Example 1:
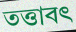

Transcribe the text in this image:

তত্তাবৎ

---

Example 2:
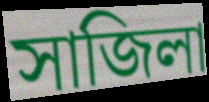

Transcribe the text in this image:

সাজিলা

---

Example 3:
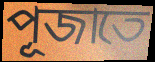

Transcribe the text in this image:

পূজাতে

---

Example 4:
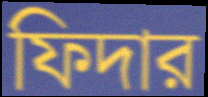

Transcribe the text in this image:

ফিদার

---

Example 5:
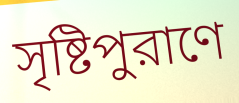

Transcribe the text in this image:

সৃষ্টিপুরাণে